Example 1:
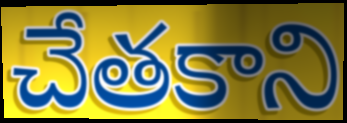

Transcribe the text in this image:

చేతకాని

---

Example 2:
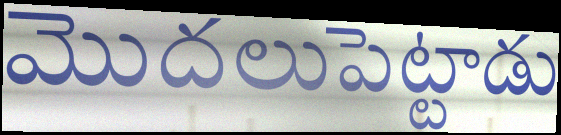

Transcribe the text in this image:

మొదలుపెట్టాడు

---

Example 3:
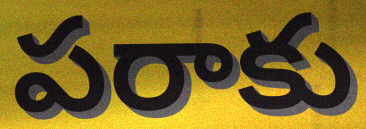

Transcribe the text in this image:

పరాకు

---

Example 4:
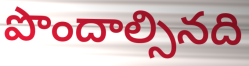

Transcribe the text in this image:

పొందాల్సినది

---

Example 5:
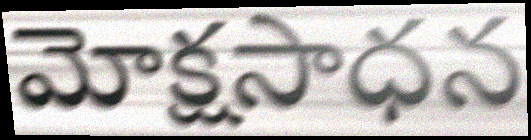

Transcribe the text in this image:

మోక్షసాధన